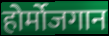
होर्मोजगान